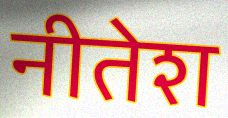
नीतेश